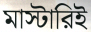
মাস্টারিই